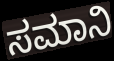
ಸಮಾನಿ